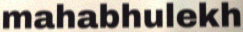
mahabhulekh